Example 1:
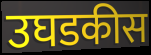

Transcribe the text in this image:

उघडकीस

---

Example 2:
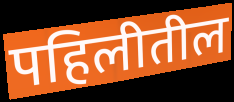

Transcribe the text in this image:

पहिलीतील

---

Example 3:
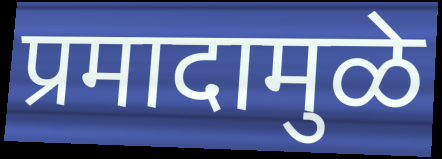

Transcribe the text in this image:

प्रमादामुळे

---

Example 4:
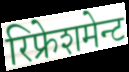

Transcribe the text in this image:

रिफ्रेशमेन्ट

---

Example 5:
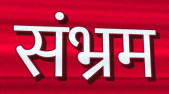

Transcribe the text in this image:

संभ्रम